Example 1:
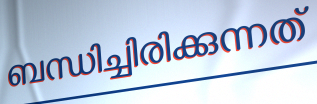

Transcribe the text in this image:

ബന്ധിച്ചിരിക്കുന്നത്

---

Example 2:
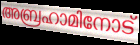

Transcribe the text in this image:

അബ്രഹാമിനോട്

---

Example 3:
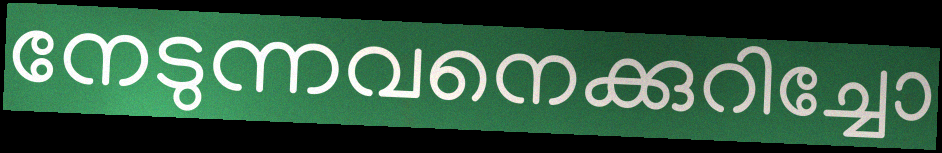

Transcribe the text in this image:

നേടുന്നവനെക്കുറിച്ചോ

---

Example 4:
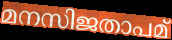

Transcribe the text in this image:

മനസിജതാപമ്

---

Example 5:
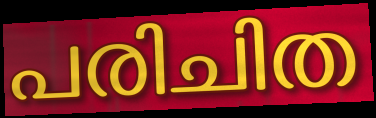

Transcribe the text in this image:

പരിചിത